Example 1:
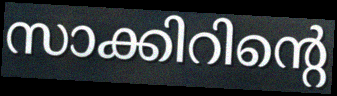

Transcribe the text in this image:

സാക്കിറിന്റെ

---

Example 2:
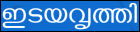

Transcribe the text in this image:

ഇടയവൃത്തി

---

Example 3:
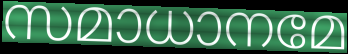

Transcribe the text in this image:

സമാധാനമേ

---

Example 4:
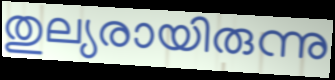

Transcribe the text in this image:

തുല്യരായിരുന്നു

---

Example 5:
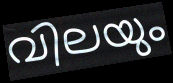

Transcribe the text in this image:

വിലയും